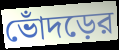
ভোঁদড়ের